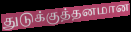
துடுக்குத்தனமான